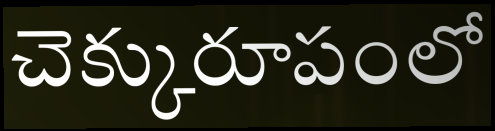
చెక్కురూపంలో